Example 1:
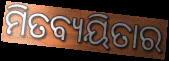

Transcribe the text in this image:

ମିତବ୍ୟୟିତାର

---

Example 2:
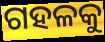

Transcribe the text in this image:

ଗହଳକୁ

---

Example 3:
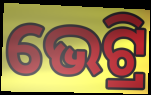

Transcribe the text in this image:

ଭେଟ୍ରି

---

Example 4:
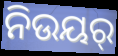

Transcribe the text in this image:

ନିଉୟର୍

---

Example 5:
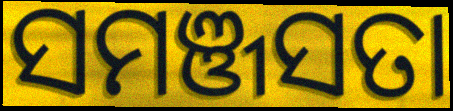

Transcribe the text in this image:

ସମଞ୍ଜସତା